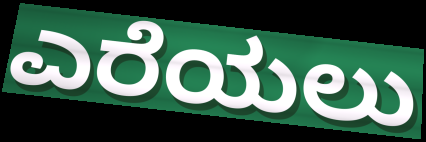
ಎರೆಯಲು